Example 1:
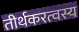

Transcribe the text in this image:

तीर्थकरत्वस्य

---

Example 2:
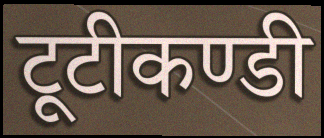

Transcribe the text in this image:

टूटीकण्डी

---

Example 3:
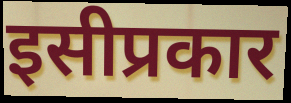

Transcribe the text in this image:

इसीप्रकार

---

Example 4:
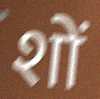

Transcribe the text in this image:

शों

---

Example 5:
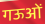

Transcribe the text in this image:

गऊओं